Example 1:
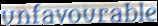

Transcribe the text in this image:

unfavourable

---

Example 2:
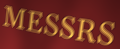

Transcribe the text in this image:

MESSRS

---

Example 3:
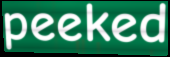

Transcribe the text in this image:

peeked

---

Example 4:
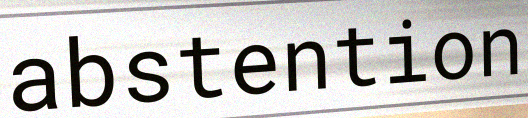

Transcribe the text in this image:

abstention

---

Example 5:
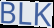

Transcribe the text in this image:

BLK